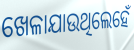
ଖେଳାଯାଉଥିଲେହେଁ